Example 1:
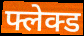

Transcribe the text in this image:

फ्लेक्ड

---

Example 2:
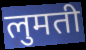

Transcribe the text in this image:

लुमती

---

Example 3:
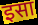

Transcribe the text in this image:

इसा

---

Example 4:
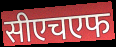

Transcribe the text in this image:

सीएचएफ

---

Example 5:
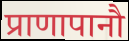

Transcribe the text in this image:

प्राणापानौ